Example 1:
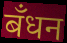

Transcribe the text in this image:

बँधन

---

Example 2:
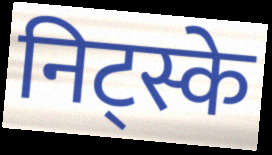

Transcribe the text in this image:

निट्स्के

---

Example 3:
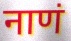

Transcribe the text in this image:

नाणं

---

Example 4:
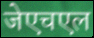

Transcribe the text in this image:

जेएचएल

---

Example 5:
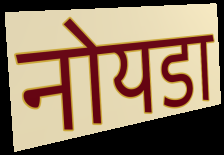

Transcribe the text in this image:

नोयडा